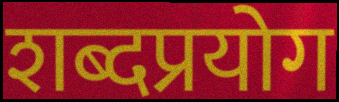
शब्दप्रयोग